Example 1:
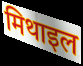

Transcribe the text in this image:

मिथाइल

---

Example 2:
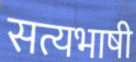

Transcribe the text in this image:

सत्यभाषी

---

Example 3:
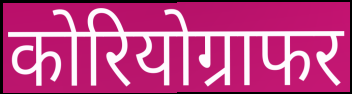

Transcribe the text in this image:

कोरियोग्राफर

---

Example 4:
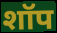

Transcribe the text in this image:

शॉप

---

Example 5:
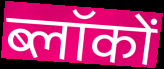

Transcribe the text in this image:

ब्लॉकों